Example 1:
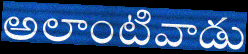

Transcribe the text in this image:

అలాంటివాడు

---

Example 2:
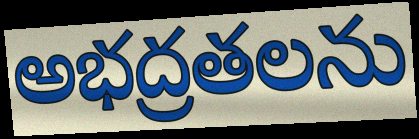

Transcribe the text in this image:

అభద్రతలను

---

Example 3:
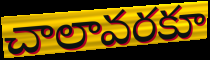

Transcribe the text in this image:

చాలావరకూ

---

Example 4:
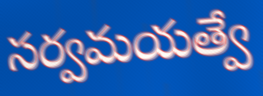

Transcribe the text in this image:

సర్వమయత్వే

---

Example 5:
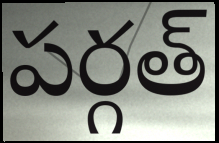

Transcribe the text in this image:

పర్గత్